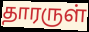
தாரருள்